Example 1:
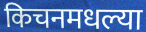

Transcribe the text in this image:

किचनमधल्या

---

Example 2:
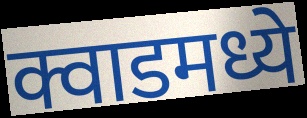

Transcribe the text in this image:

क्वाडमध्ये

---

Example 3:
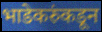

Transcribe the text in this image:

भाडेकरुंकडून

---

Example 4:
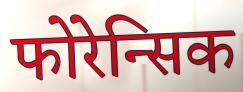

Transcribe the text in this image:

फोरेन्सिक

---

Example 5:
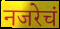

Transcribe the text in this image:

नजरेचं